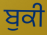
ਬੁਕੀ